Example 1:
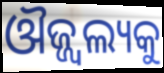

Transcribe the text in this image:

ଔଜ୍ଜ୍ଵଲ୍ୟକୁ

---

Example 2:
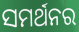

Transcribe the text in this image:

ସମର୍ଥନର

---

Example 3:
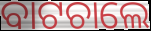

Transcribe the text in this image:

ବାଟଚାଲେ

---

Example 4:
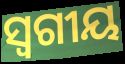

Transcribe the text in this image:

ସ୍ୱଗୀୟ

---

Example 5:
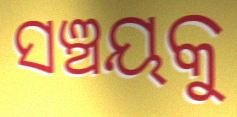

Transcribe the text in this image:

ସଞ୍ଚୟକୁ